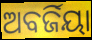
ଅବର୍ଜିୟା